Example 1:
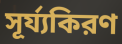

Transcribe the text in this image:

সূর্য্যকিরণ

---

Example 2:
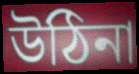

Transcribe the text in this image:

উঠিনা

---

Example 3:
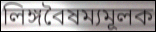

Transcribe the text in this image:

লিঙ্গবৈষম্যমূলক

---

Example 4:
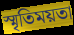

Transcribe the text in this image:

স্মৃতিময়তা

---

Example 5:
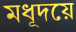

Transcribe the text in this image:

মধূদয়ে